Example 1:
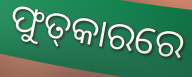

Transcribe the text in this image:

ଫୁତ୍‌କାରରେ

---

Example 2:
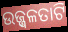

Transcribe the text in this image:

ଉଜ୍ଜ୍ୱଳତାଟି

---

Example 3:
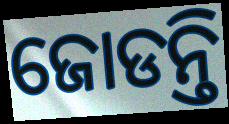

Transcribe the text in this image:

ଜୋଡନ୍ତି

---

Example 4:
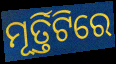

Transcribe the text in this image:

ମୂର୍ତ୍ତିଟିରେ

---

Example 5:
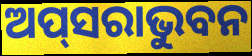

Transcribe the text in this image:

ଅପ୍‍ସରାଭୁବନ